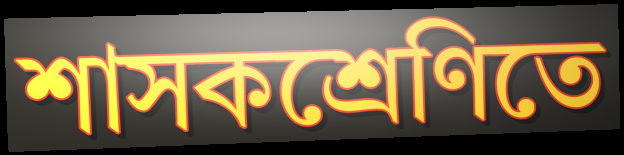
শাসকশ্রেণিতে